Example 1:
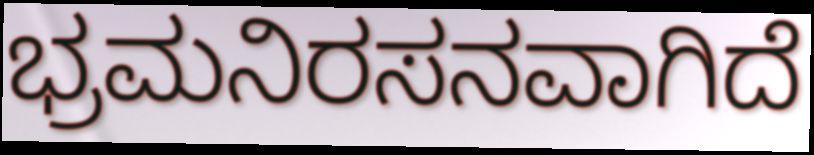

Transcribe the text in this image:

ಭ್ರಮನಿರಸನವಾಗಿದೆ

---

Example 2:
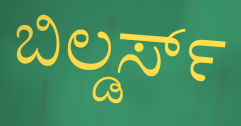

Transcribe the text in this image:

ಬಿಲ್ಡರ್ಸ್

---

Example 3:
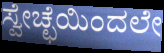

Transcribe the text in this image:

ಸ್ವೇಚ್ಛೆಯಿಂದಲೇ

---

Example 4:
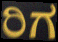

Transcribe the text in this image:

ರಿಗ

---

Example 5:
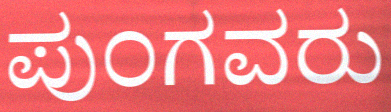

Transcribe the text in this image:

ಪುಂಗವರು